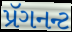
પ્રૅગનન્ટ